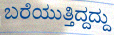
ಬರೆಯುತ್ತಿದ್ದದ್ದು